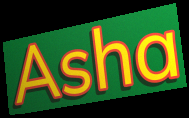
Asha